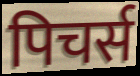
पिचर्स